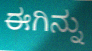
ಈಗಿನ್ನು